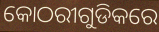
କୋଠରୀଗୁଡିକରେ